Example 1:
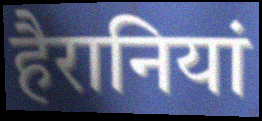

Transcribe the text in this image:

हैरानियां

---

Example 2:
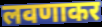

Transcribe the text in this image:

लवणाकर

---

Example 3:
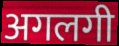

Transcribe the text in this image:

अगलगी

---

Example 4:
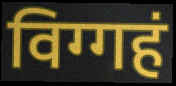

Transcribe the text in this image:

विग्गहं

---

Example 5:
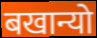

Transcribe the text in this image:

बखान्यो